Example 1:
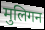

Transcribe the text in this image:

मुलिगन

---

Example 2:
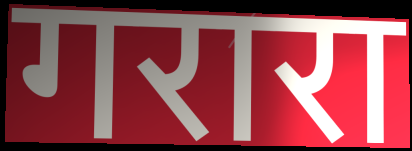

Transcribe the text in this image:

गरारा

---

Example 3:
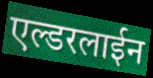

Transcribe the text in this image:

एल्डरलाईन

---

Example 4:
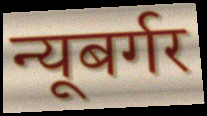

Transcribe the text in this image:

न्यूबर्गर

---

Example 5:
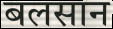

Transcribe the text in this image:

बलसान